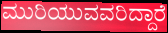
ಮುರಿಯುವವರಿದ್ದಾರೆ